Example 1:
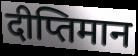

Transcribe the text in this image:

दीप्तिमान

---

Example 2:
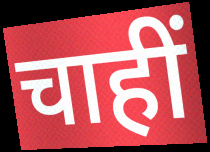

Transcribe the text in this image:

चाहीं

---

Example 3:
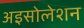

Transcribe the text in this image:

अइसोलेशन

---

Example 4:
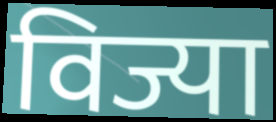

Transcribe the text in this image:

विज्या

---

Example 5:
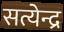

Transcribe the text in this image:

सत्येन्द्र